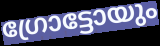
ഗ്രോട്ടോയും